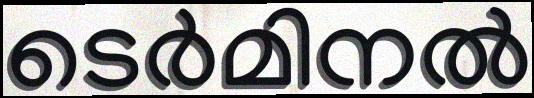
ടെർമിനൽ